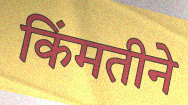
किंमतीने